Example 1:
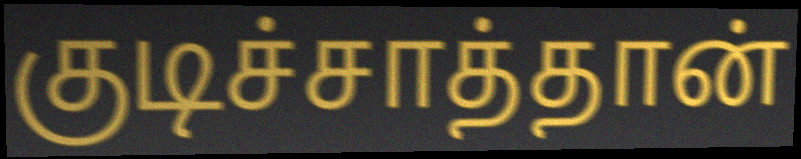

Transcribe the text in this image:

குடிச்சாத்தான்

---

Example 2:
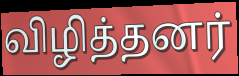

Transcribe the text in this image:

விழித்தனர்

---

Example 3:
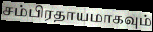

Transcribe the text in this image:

சம்பிரதாயமாகவும்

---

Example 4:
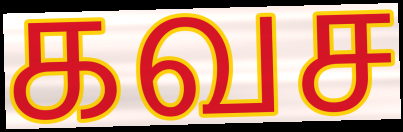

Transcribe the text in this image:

கவச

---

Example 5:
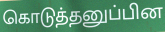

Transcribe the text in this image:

கொடுத்தனுப்பின